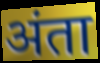
अंता